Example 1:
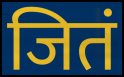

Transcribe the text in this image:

जितं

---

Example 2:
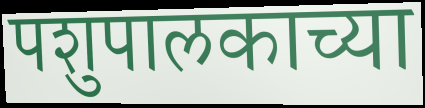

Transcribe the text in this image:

पशुपालकाच्या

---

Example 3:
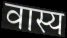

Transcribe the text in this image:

वास्य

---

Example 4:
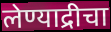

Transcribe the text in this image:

लेण्याद्रीचा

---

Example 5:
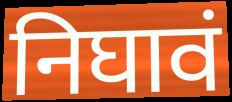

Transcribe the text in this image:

निघावं